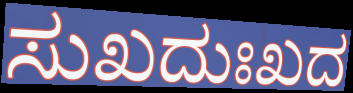
ಸುಖದುಃಖದ